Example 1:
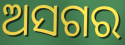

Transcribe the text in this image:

ଅସଗର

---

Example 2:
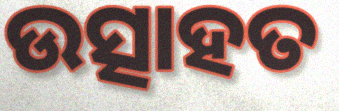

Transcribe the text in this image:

ଉତ୍ସାହତ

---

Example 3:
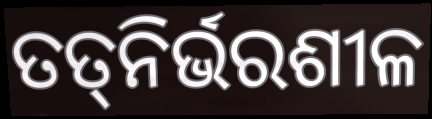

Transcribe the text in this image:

ତତ୍‍ନିର୍ଭରଶୀଳ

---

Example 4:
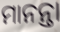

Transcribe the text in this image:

ମାନନ୍ତା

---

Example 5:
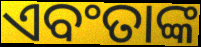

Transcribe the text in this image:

ଏବଂତାଙ୍କ